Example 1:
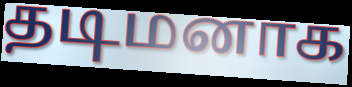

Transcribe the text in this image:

தடிமனாக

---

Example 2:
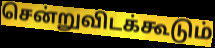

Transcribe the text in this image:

சென்றுவிடக்கூடும்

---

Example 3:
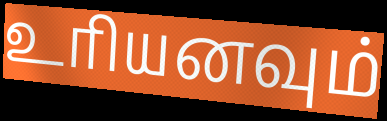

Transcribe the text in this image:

உரியனவும்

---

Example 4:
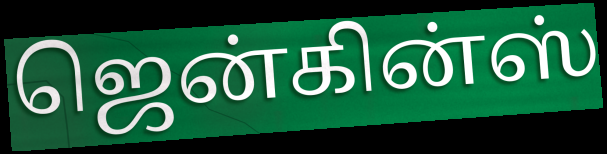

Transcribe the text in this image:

ஜென்கின்ஸ்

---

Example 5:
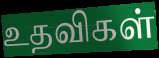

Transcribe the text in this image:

உதவிகள்